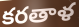
కరతాళ